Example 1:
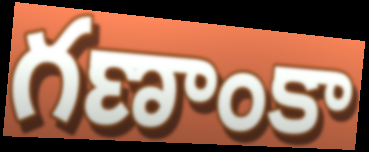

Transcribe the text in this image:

గణాంకా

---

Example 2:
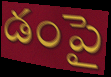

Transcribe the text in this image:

డంపై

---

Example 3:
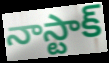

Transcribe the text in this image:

నాస్టాక్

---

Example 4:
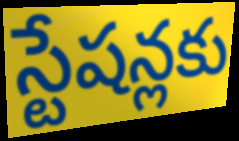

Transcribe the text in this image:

స్టేషన్లకు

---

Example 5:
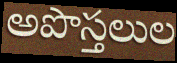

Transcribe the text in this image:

అపొస్తలుల